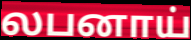
லபனாய்